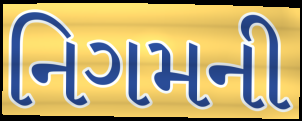
નિગમની